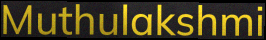
Muthulakshmi